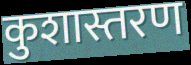
कुशास्तरण